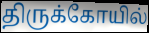
திருக்கோயில்